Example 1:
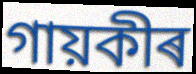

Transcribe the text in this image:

গায়কীৰ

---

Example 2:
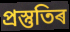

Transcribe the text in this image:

প্ৰস্তুতিৰ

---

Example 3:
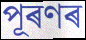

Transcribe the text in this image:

পূৰণৰ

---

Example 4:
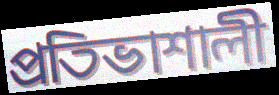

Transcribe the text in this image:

প্ৰতিভাশালী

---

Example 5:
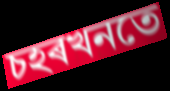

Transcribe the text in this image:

চহৰখনতে